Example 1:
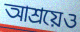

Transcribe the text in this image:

আশ্রয়েও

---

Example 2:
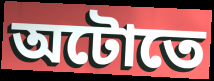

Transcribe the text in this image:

অটোতে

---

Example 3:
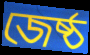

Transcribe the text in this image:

জেষ্ঠ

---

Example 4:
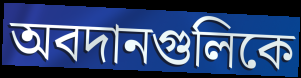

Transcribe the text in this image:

অবদানগুলিকে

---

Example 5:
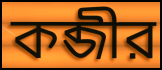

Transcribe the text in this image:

কব্জীর